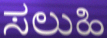
ಸಲುಹಿ